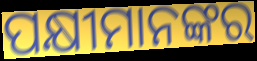
ପକ୍ଷୀମାନଙ୍କର